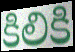
కిలికి